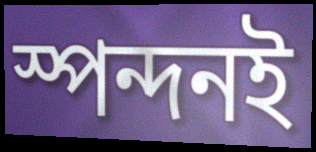
স্পন্দনই